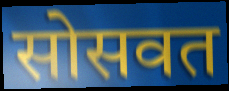
सोसवत